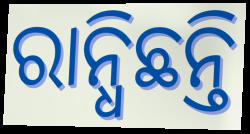
ରାନ୍ଧିଛନ୍ତି